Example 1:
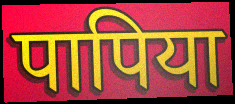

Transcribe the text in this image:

पापिया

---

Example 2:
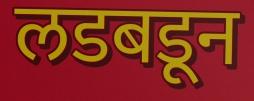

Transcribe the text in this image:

लडबडून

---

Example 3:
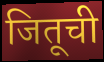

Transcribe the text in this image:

जितूची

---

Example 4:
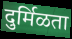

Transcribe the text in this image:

दुर्मिळता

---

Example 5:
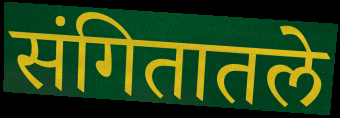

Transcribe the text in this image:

संगितातले